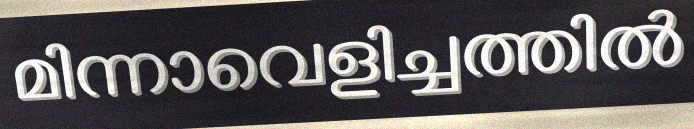
മിന്നാവെളിച്ചത്തിൽ